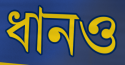
ধানও